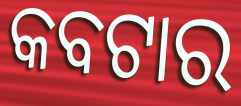
କବଟାର